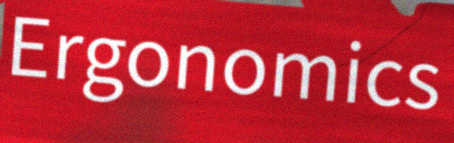
Ergonomics